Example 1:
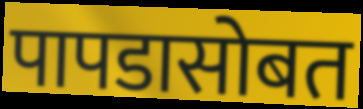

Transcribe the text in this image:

पापडासोबत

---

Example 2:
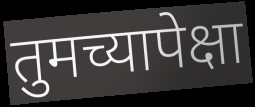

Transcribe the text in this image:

तुमच्यापेक्षा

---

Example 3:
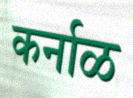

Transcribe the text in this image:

कर्नाळ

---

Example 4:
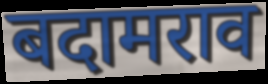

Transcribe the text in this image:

बदामराव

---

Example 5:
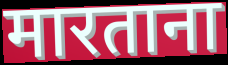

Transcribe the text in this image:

मारताना